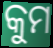
କୁମ